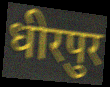
धीरपुर